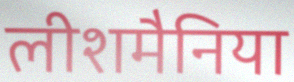
लीशमैनिया